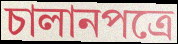
চালানপত্রে